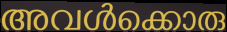
അവൾക്കൊരു